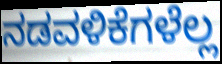
ನಡವಳಿಕೆಗಳೆಲ್ಲ